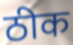
ठीक